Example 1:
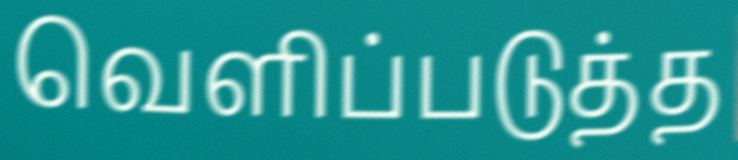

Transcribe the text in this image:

வெளிப்படுத்த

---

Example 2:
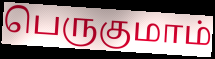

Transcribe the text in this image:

பெருகுமாம்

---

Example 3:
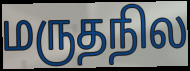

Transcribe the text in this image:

மருதநில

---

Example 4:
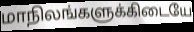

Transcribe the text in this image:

மாநிலங்களுக்கிடையே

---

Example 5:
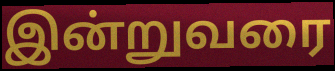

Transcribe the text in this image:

இன்றுவரை